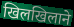
खिलखिलाने